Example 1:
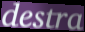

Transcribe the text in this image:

destra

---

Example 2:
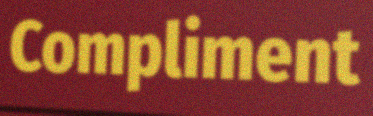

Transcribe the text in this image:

Compliment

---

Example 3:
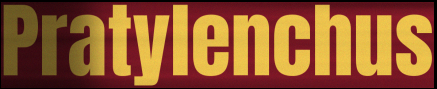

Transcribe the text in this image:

Pratylenchus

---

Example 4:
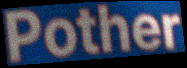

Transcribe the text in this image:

Pother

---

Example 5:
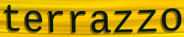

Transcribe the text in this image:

terrazzo